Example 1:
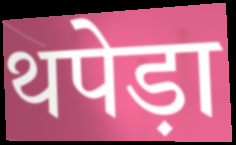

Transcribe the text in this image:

थपेड़ा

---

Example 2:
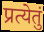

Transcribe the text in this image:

प्रत्येतुं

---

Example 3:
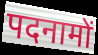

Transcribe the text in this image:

पदनामों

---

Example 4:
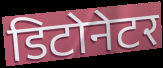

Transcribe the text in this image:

डिटोनेटर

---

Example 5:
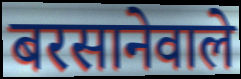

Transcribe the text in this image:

बरसानेवाले